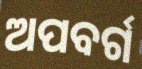
ଅପବର୍ଗ